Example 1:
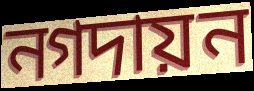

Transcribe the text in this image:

নগদায়ন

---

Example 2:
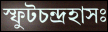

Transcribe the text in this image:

স্ফুটচন্দ্রহাসঃ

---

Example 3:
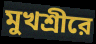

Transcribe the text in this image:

মুখশ্রীরে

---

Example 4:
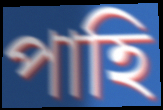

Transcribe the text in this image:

পাহি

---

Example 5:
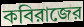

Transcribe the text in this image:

কবিরাজের